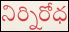
నిర్నిరోధ